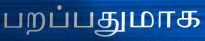
பறப்பதுமாக